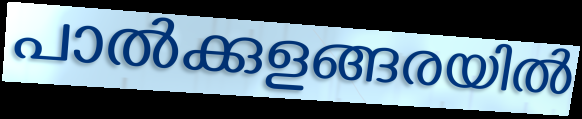
പാൽക്കുളങ്ങരയിൽ